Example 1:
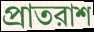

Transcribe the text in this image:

প্রাতরাশ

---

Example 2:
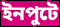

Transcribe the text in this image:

ইনপুটে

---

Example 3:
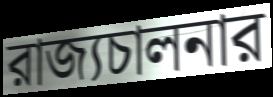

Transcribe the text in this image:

রাজ্যচালনার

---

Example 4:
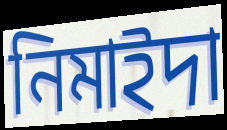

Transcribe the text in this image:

নিমাইদা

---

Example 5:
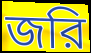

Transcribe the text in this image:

জরি